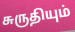
சுருதியும்